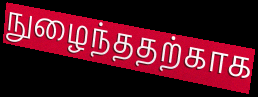
நுழைந்ததற்காக